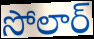
సోలార్